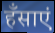
हँसाएं